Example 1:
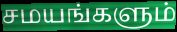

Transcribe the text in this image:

சமயங்களும்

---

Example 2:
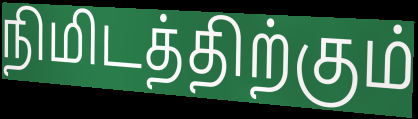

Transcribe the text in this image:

நிமிடத்திற்கும்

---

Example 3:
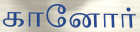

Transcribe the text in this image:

கானோர்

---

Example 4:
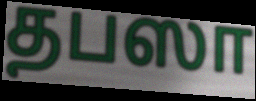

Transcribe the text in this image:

தபஸா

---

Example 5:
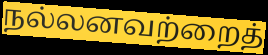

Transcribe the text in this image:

நல்லனவற்றைத்